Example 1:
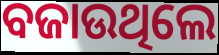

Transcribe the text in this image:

ବଜାଉଥିଲେ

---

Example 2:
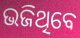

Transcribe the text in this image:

ଭଜିଥିବେ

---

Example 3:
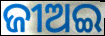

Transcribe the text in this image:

ଜୀଅଇ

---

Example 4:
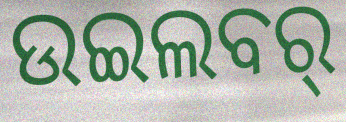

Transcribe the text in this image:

ଉଇଲବର୍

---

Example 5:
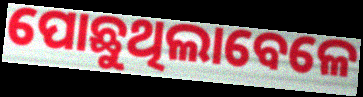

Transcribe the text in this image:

ପୋଛୁଥିଲାବେଳେ